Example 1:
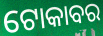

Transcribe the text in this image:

ଟୋକାବର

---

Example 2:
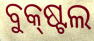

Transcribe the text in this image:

ବୁକ୍‌ଷ୍ଟଲ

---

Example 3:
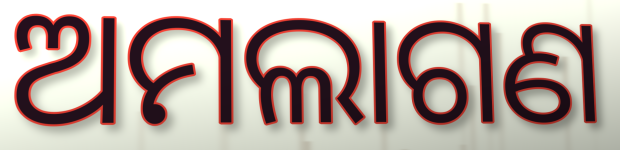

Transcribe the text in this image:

ଅମଲାଗଣ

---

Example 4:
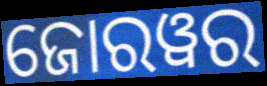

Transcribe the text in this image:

ଜୋରୱର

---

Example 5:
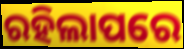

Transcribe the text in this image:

ରହିଲାପରେ